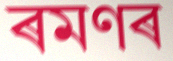
ৰমণৰ